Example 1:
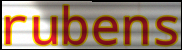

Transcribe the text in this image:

rubens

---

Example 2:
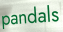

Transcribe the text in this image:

pandals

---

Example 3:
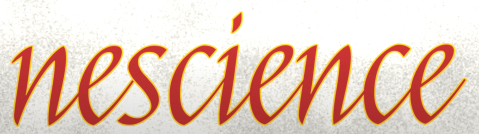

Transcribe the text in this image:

nescience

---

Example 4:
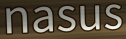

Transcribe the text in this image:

nasus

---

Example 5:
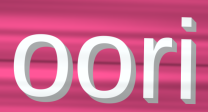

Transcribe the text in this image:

oori